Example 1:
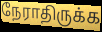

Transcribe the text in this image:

நேராதிருக்க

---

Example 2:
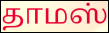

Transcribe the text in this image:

தாமஸ்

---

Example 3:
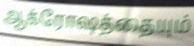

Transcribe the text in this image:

ஆக்ரோஷத்தையும்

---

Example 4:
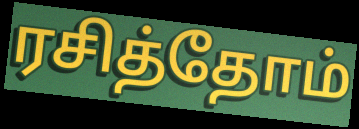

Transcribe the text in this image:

ரசித்தோம்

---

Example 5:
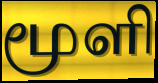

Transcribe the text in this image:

மூளி